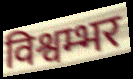
विश्वम्भर